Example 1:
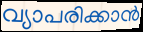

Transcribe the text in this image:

വ്യാപരിക്കാൻ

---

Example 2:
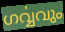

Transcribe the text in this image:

ഗൎവ്വവും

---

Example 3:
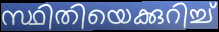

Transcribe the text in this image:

സ്ഥിതിയെക്കുറിച്ച്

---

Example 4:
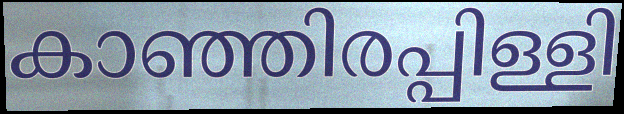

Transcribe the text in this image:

കാഞ്ഞിരപ്പിള്ളി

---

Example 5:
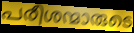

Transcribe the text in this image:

പരീശന്മാരുടെ